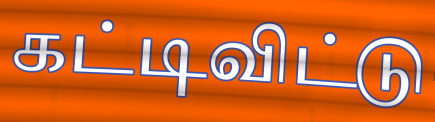
கட்டிவிட்டு